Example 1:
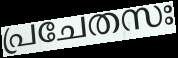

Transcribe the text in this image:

പ്രചേതസഃ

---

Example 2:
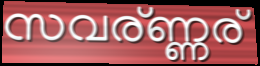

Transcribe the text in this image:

സവര്ണ്ണര്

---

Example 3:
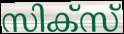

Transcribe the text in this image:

സിക്സ്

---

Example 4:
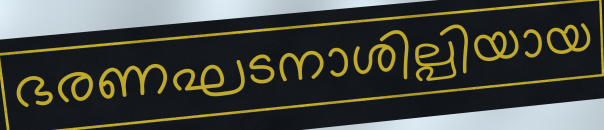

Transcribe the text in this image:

ഭരണഘടനാശില്പിയായ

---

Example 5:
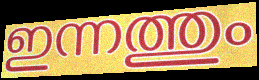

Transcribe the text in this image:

ഇന്നത്തും